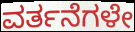
ವರ್ತನೆಗಳೇ